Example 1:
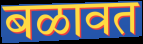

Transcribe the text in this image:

बळावत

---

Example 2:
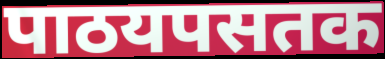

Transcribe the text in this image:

पाठयपसतक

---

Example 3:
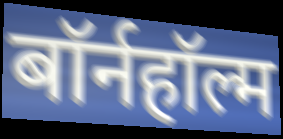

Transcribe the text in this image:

बॉर्नहॉल्म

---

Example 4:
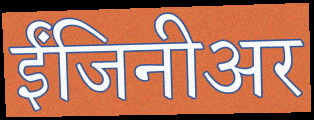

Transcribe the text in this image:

ईंजिनीअर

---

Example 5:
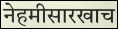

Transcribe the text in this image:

नेहमीसारखाच